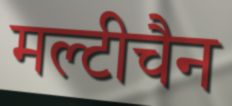
मल्टीचैन